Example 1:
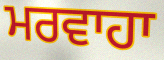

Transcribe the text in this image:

ਮਰਵਾਹਾ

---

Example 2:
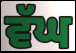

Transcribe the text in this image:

ਵੱਘ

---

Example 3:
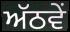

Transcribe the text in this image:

ਅੱਠਵੇਂ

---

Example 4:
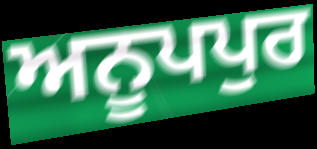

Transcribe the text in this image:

ਅਨੂਪਪੁਰ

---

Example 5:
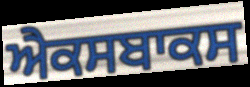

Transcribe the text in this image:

ਐਕਸਬਾਕਸ